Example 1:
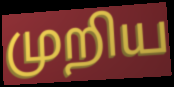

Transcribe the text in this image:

முறிய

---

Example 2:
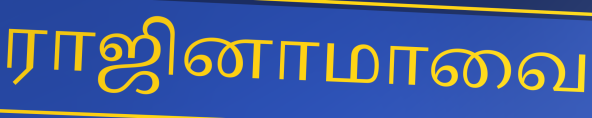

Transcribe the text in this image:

ராஜினாமாவை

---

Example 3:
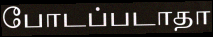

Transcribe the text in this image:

போடப்படாதா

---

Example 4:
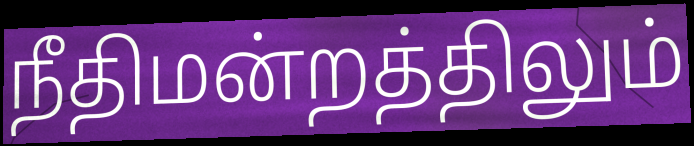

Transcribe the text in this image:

நீதிமன்றத்திலும்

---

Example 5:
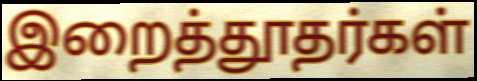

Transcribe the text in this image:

இறைத்தூதர்கள்